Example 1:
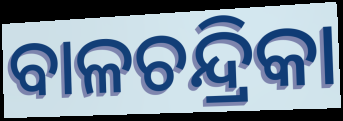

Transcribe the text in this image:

ବାଳଚନ୍ଦ୍ରିକା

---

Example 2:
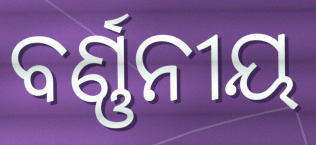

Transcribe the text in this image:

ବର୍ଣ୍ଣନୀୟ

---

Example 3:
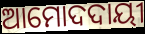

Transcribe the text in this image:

ଆମୋଦଦାୟୀ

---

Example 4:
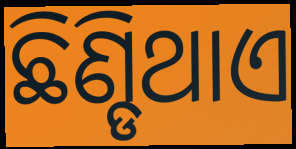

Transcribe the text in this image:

ଛିଣ୍ଡିଥାଏ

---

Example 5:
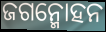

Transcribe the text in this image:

ଜଗନ୍ମୋହନ